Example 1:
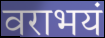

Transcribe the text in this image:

वराभयं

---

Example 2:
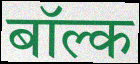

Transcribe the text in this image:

बॉल्क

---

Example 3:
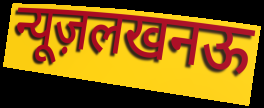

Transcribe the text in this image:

न्यूज़लखनऊ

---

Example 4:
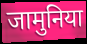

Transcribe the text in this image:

जामुनिया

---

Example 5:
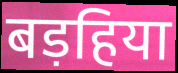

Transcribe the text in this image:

बड़हिया